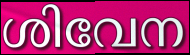
ശിവേന